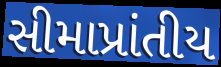
સીમાપ્રાંતીય